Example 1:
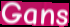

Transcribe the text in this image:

Gans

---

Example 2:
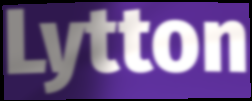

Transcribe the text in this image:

Lytton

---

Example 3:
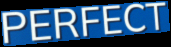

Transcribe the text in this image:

PERFECT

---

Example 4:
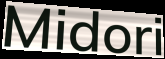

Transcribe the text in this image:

Midori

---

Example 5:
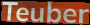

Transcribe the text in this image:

Teuber